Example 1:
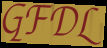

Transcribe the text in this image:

GFDL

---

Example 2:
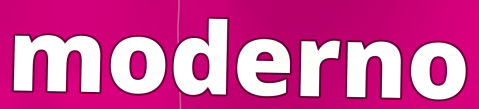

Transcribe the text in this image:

moderno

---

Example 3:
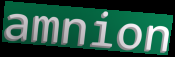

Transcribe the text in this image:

amnion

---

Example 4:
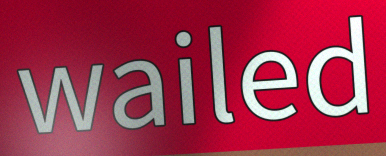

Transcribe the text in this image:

wailed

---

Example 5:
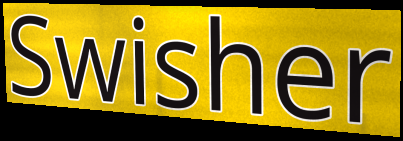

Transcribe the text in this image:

Swisher